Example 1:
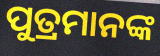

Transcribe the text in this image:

ପୁତ୍ରମାନଙ୍କ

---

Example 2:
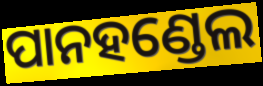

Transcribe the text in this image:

ପାନହଣ୍ଡେଲ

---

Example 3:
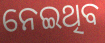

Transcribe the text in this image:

ନେଇଥିବ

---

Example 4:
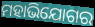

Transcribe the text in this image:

ମହାଭିଯୋଗର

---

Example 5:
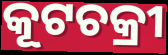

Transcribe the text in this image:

କୂଟଚକ୍ରୀ